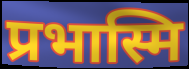
प्रभास्मि